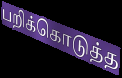
பறிக்கொடுத்த